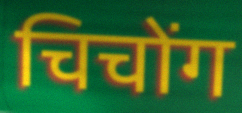
चिचोंग